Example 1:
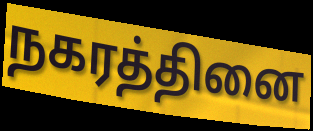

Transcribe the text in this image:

நகரத்தினை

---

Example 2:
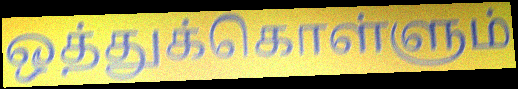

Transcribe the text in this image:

ஒத்துக்கொள்ளும்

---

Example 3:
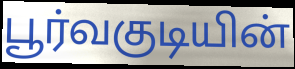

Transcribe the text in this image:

பூர்வகுடியின்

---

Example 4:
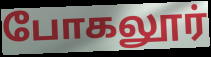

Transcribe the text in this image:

போகலூர்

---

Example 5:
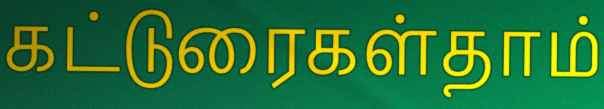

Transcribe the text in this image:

கட்டுரைகள்தாம்